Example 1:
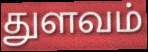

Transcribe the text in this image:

துளவம்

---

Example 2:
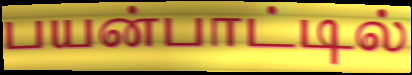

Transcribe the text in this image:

பயன்பாட்டில்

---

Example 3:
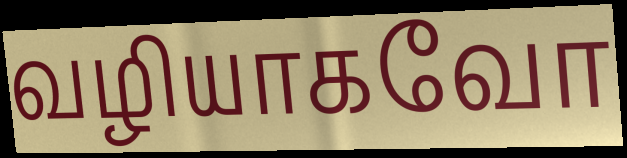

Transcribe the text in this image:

வழியாகவோ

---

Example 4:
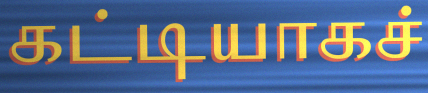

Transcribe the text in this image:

கட்டியாகச்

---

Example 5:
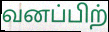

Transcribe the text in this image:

வனப்பிற்